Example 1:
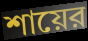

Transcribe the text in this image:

শায়ের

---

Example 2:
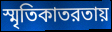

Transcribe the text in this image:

স্মৃতিকাতরতায়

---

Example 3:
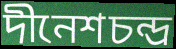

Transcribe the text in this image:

দীনেশচন্দ্র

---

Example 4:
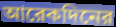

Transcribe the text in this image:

আরেকদিনের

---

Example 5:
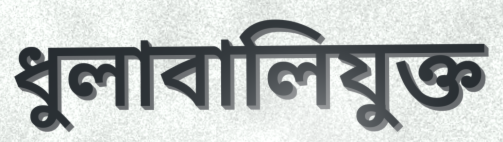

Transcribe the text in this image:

ধুলাবালিযুক্ত